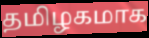
தமிழகமாக